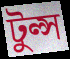
টুল্স